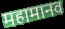
महामानव